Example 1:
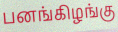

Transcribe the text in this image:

பனங்கிழங்கு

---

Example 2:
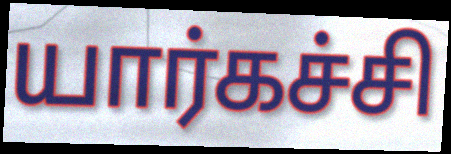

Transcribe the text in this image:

யார்கச்சி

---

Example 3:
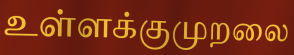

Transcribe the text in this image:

உள்ளக்குமுறலை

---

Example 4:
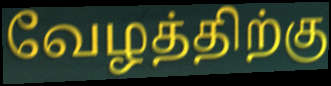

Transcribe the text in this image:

வேழத்திற்கு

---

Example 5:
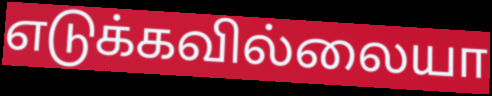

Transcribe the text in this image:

எடுக்கவில்லையா